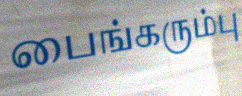
பைங்கரும்பு